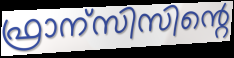
ഫ്രാന്സിസിന്റെ